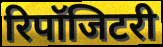
रिपॉजिटरी